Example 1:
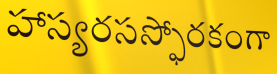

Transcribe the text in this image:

హాస్యరసస్ఫోరకంగా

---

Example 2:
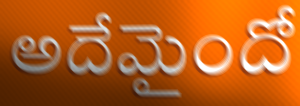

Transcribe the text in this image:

అదేమైందో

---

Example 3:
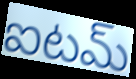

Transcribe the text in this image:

ఐటమ్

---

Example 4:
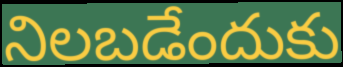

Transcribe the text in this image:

నిలబడేందుకు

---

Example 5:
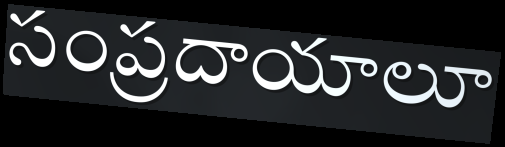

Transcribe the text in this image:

సంప్రదాయాలూ